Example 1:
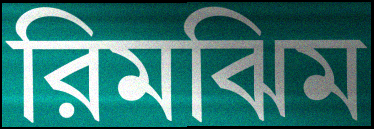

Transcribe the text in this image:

রিমঝিম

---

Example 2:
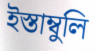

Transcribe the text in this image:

ইস্তাম্বুলি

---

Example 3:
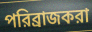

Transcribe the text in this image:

পরিব্রাজকরা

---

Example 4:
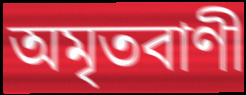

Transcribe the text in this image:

অমৃতবাণী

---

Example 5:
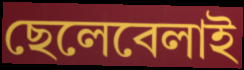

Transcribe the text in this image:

ছেলেবেলাই